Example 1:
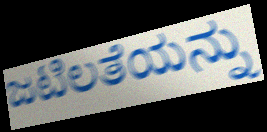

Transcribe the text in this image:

ಜಟಿಲತೆಯನ್ನು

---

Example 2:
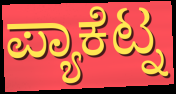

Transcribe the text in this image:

ಪ್ಯಾಕೆಟ್ನ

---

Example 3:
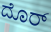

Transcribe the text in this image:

ದೊರ್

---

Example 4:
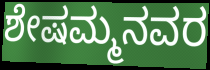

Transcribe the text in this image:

ಶೇಷಮ್ಮನವರ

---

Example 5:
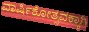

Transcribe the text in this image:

ವಾರ್ಷಿಕೋತ್ಸವಕ್ಕಾಗಿ